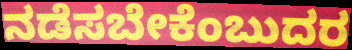
ನಡೆಸಬೇಕೆಂಬುದರ